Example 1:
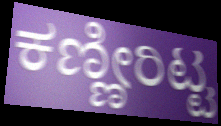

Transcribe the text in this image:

ಕಣ್ಣೀರಿಟ್ಟ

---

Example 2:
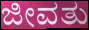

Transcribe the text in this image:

ಜೀವತು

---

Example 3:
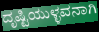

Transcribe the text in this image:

ದೃಷ್ಟಿಯುಳ್ಳವನಾಗಿ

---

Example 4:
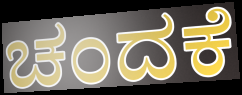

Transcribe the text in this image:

ಚಂದಕೆ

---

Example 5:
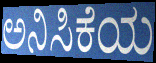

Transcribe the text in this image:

ಅನಿಸಿಕೆಯ